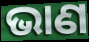
ଭାଣ